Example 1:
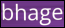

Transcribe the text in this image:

bhage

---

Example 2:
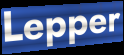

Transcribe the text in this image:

Lepper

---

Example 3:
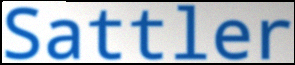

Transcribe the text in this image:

Sattler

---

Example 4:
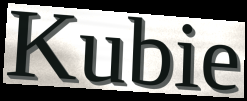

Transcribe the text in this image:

Kubie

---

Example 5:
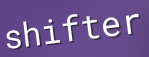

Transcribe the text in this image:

shifter